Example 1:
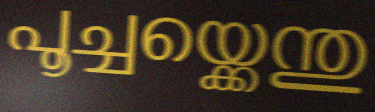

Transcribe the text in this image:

പൂച്ചയ്ക്കെന്തു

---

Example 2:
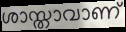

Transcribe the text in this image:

ശാസ്താവാണ്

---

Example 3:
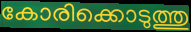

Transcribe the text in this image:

കോരിക്കൊടുത്തു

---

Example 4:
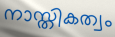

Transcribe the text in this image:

നാസ്തികത്വം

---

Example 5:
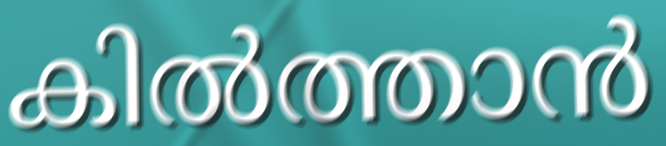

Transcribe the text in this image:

കിൽത്താൻ